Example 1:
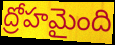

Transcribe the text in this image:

ద్రోహమైంది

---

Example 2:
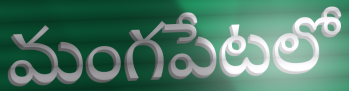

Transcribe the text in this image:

మంగపేటలో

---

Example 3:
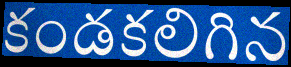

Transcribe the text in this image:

కండకలిగిన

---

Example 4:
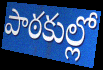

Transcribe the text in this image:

పాఠకుల్లో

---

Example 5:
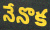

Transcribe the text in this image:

నేనొక